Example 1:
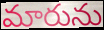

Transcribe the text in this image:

మారును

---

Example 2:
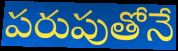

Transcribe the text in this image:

పరుపుతోనే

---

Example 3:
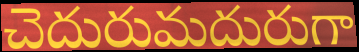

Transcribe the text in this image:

చెదురుమదురుగా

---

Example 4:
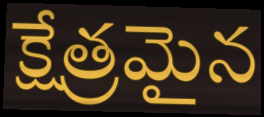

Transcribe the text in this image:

క్షేత్రమైన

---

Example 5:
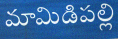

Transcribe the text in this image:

మామిడిపల్లి